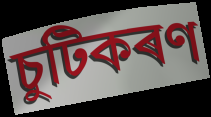
চুটিকৰণ